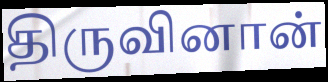
திருவினான்